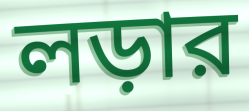
লড়ার